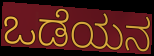
ಒಡೆಯನ